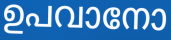
ഉപവാനോ